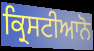
ਕ੍ਰਿਸਟੀਆਨੋ